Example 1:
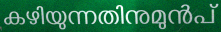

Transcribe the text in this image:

കഴിയുന്നതിനുമുൻപ്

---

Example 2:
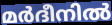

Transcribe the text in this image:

മർദീനിൽ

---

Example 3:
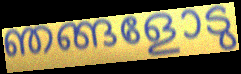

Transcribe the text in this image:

ഞങ്ങളോടു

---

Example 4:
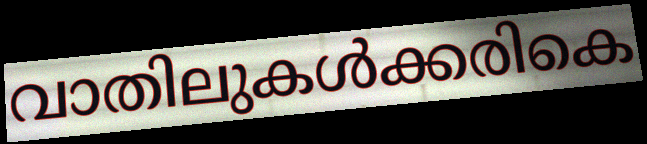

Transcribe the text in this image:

വാതിലുകൾക്കരികെ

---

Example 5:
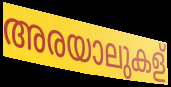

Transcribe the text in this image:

അരയാലുകള്